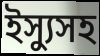
ইস্যুসহ